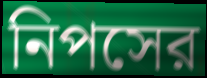
নিপসের